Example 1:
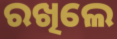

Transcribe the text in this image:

ରଖିଲେ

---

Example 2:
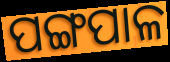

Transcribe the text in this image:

ପଙ୍ଗପାଳ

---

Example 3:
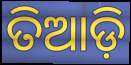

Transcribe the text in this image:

ତିଆଡ଼ି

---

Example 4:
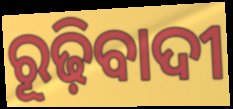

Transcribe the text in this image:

ରୂଢ଼ିବାଦୀ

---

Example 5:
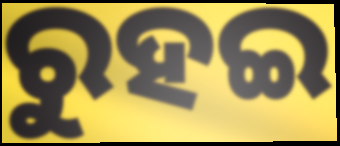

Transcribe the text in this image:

ରୁହଇ